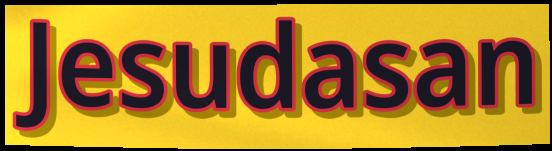
Jesudasan